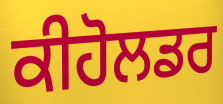
ਕੀਹੋਲਡਰ